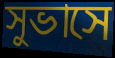
সুভাসে